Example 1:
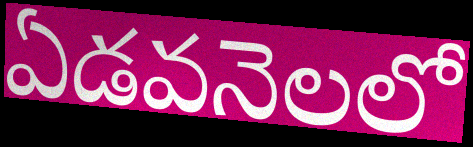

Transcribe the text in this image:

ఏడవనెలలో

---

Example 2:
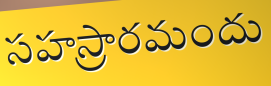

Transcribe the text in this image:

సహస్రారమందు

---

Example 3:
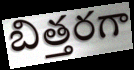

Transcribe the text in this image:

బిత్తరగా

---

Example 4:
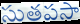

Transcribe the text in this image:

సుతపసా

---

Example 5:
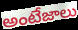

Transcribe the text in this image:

అంటేజాలు